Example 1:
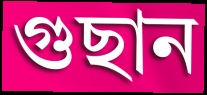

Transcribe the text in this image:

গুছান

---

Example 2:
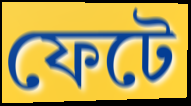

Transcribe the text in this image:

ফেটে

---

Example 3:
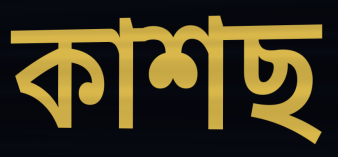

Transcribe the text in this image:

কাশছ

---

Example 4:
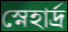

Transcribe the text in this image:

স্নেহার্দ্র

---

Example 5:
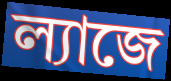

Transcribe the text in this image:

ল্যাজে